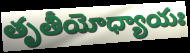
తృతీయోధ్యాయః